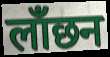
लाँछन